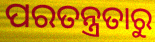
ପରତନ୍ତ୍ରତାରୁ